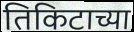
तिकिटाच्या